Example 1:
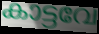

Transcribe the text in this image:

കാട്ടവേ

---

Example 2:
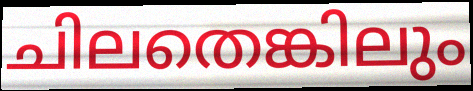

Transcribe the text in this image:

ചിലതെങ്കിലും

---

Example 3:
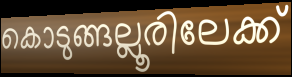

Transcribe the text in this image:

കൊടുങ്ങല്ലൂരിലേക്ക്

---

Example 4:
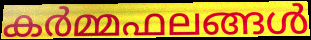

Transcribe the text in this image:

കർമ്മഫലങ്ങൾ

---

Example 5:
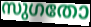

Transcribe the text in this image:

സുഗതോ